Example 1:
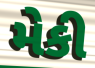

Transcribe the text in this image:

મેકી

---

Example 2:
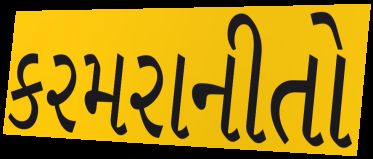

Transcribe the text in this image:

કરમરાનીતો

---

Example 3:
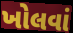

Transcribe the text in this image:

ખોલવાં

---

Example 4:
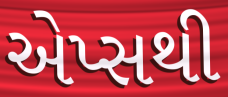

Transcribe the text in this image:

એપ્સથી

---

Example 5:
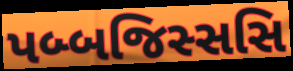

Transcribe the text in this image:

પબ્બજિસ્સસિ